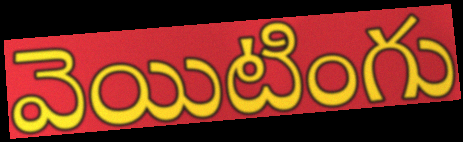
వెయిటింగు